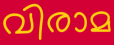
വിരാമ